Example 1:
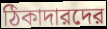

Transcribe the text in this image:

ঠিকাদারদের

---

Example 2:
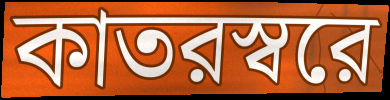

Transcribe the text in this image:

কাতরস্বরে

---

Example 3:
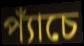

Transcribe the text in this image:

প্যাঁচে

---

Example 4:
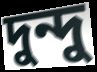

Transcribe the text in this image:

দুন্দু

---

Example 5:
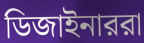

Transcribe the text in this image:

ডিজাইনাররা